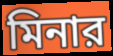
মিনার